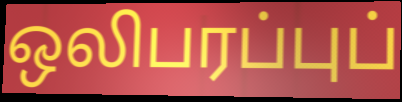
ஒலிபரப்புப்